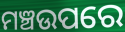
ମଞ୍ଚଉପରେ